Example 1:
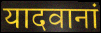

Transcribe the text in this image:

यादवानां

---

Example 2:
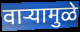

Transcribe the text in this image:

वाऱ्यामुळे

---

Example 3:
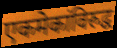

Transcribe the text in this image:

एकमेकांविरुद्ध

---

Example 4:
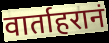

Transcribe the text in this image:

वार्ताहरानं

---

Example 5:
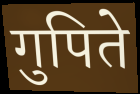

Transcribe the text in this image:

गुपिते